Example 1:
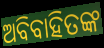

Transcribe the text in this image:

ଅବିବାହିତଙ୍କ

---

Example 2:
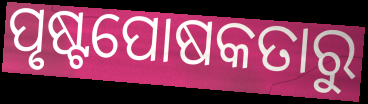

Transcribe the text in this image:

ପୃଷ୍ଟପୋଷକତାରୁ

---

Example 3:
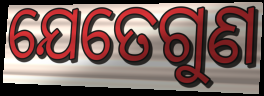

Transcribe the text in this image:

ଯେତେଗୁଣ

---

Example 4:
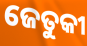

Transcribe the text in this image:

ଜେତୁକୀ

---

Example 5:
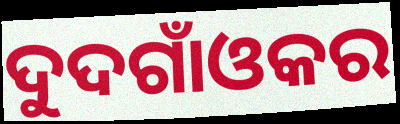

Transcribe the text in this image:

ଦୁଦଗାଁଓକର